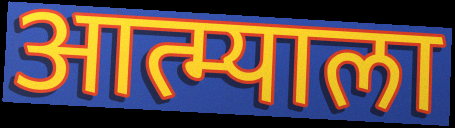
आत्म्याला